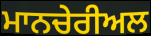
ਮਾਨਚੇਰੀਅਲ